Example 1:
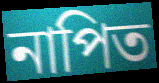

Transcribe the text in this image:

নাপিত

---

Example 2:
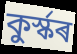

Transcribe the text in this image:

কুৰ্স্কৰ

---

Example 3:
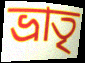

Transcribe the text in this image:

ভ্ৰাতৃ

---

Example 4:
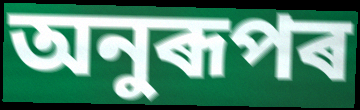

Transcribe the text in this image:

অনুৰূপৰ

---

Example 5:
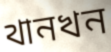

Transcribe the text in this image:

থানখন